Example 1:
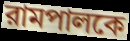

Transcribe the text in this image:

রামপালকে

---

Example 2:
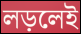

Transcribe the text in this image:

লড়লেই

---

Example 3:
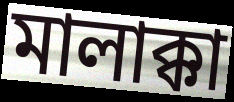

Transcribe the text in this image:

মালাক্কা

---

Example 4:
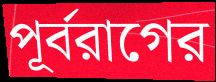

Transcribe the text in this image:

পূর্বরাগের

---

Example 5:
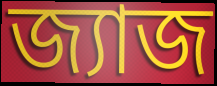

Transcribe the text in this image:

জ্যাজ